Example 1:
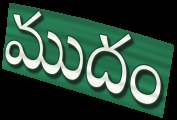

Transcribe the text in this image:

ముదం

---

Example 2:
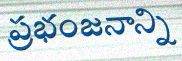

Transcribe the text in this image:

ప్రభంజనాన్ని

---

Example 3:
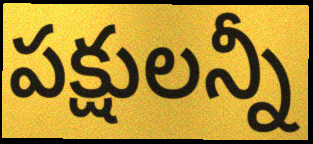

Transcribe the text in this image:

పక్షులన్నీ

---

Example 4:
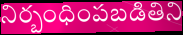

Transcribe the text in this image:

నిర్బంధింపబడితిని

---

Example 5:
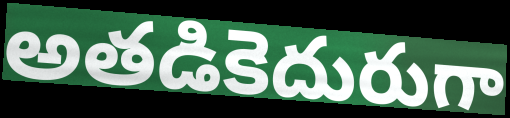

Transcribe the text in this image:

అతడికెదురుగా